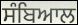
ਸੰਬਿਆਲ